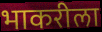
भाकरीला